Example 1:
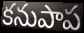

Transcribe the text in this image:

కనుపాప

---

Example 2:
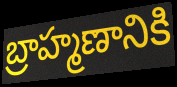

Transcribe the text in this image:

బ్రాహ్మణానికి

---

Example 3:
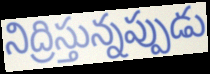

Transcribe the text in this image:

నిద్రిస్తున్నప్పుడు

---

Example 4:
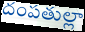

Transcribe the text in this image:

దంపతుల్లా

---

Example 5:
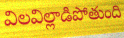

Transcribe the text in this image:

విలవిల్లాడిపోతుంది